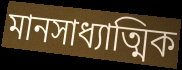
মানসাধ্যাত্মিক